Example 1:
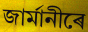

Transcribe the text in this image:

জাৰ্মানীৰে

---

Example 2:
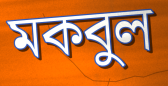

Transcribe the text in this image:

মকবুল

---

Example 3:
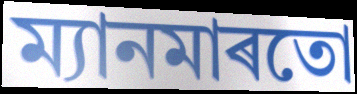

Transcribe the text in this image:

ম্যানমাৰতো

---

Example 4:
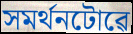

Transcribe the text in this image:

সমৰ্থনটোৱে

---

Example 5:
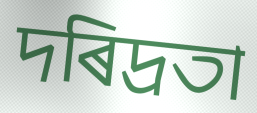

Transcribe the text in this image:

দৰিদ্ৰতা